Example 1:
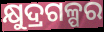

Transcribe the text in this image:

କ୍ଷୁଦ୍ରଗଳ୍ପର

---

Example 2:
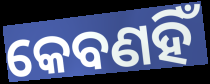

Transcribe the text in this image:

କେବଣହିଁ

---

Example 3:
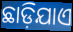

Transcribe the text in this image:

ଛାଡ଼ିଯାଏ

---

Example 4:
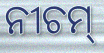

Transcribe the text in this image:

ନୀଚମ୍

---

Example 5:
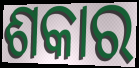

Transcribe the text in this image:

ଶକାର